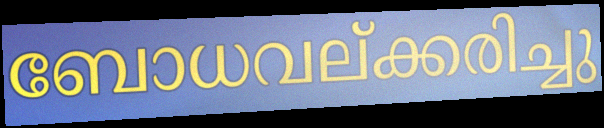
ബോധവല്ക്കരിച്ചു